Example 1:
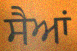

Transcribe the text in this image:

ਸੈਆਂ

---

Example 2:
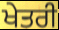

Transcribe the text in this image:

ਖੇਤਰੀ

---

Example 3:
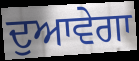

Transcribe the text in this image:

ਦੁਆਵੇਗਾ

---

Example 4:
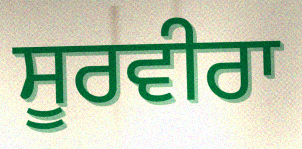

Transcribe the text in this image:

ਸੂਰਵੀਰਾ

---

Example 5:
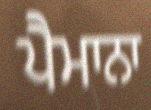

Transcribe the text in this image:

ਪੈਮਾਨਾ